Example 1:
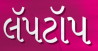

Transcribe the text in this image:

લૅપટૉપ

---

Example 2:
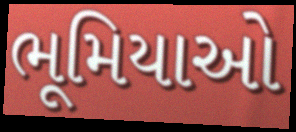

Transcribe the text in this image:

ભૂમિયાઓ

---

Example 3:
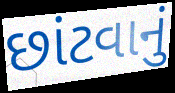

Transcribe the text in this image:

છાંટવાનું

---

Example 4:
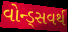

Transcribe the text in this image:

વોન્ડ્સવર્થ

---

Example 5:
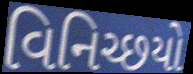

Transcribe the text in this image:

વિનિચ્છયો